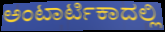
ಅಂಟಾರ್ಟಿಕಾದಲ್ಲಿ